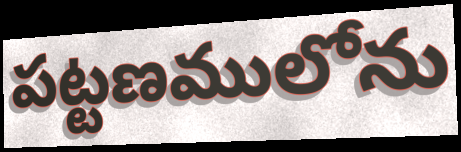
పట్టణములోను